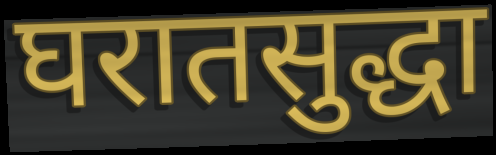
घरातसुद्धा